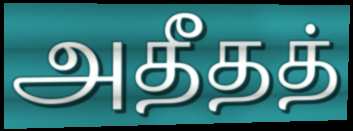
அதீதத்